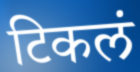
टिकलं